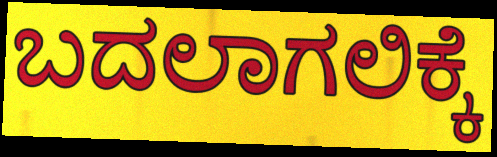
ಬದಲಾಗಲಿಕ್ಕೆ